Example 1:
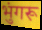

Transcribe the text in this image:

भुंगरू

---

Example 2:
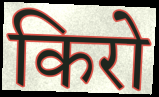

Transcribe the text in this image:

किरो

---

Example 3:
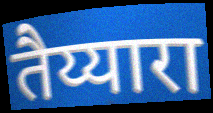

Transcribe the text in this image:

तैय्यारा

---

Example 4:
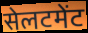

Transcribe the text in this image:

सेलटमेंट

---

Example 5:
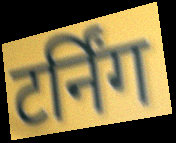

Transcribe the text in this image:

टर्निंग